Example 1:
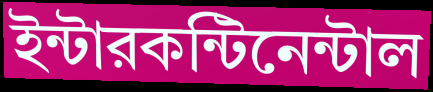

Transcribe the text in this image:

ইন্টারকন্টিনেন্টাল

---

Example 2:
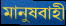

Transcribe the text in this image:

মানুষবাহী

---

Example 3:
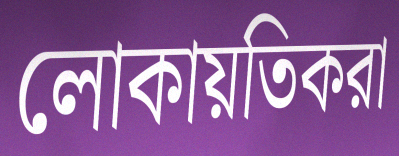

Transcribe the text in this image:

লোকায়তিকরা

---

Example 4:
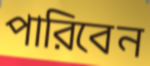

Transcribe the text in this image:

পারিবেন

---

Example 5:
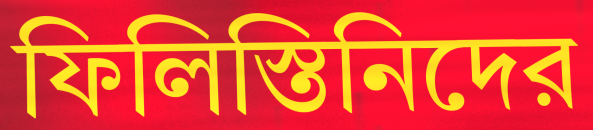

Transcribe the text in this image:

ফিলিস্তিনিদের